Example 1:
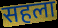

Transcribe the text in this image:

सहला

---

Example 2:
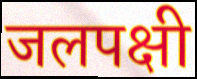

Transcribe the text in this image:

जलपक्षी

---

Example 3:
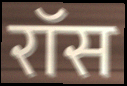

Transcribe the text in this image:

रॉस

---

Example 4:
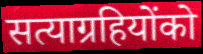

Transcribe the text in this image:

सत्याग्रहियोंको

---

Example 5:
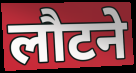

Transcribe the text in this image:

लौटने